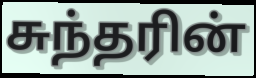
சுந்தரின்